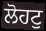
ਲੋਹਟੁ